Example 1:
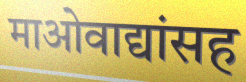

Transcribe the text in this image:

माओवाद्यांसह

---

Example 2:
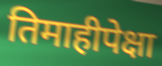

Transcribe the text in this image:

तिमाहीपेक्षा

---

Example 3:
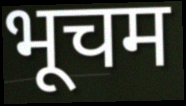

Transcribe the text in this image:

भूचम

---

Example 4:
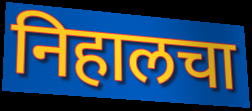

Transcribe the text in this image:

निहालचा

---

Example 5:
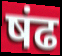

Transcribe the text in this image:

षंढ